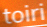
toiri